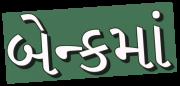
બેન્કમાં